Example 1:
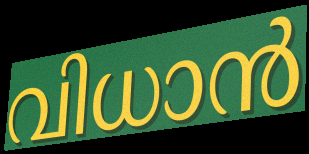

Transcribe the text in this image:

വിധാൻ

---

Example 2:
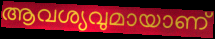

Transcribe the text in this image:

ആവശ്യവുമായാണ്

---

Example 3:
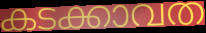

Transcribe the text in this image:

കടക്കാവത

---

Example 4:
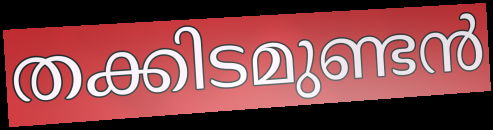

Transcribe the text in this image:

തക്കിടമുണ്ടൻ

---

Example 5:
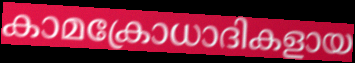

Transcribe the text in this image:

കാമക്രോധാദികളായ